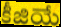
కీజియే